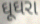
ઘૂઘરા